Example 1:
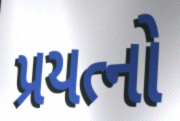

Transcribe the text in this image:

પ્રયત્નો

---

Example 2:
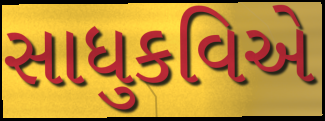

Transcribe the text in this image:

સાધુકવિએ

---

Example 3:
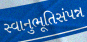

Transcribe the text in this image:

સ્વાનુભૂતિસંપન્ન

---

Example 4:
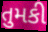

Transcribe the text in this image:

તુમકી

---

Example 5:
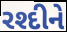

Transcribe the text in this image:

રશ્દીને